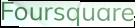
Foursquare